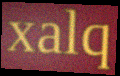
xalq